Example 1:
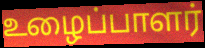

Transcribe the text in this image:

உழைப்பாளர்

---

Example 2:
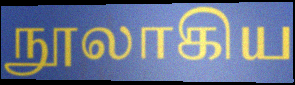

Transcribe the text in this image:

நூலாகிய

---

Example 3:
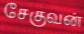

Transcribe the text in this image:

சேகுவன்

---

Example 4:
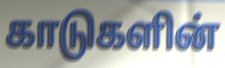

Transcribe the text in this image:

காடுகளின்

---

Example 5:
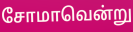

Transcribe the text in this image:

சோமாவென்று